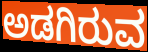
ಅಡಗಿರುವ